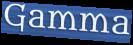
Gamma